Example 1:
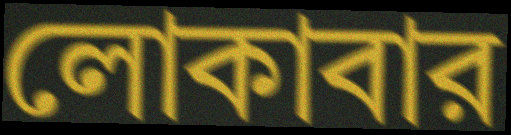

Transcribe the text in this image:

লোকাবার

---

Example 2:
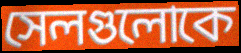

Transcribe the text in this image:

সেলগুলোকে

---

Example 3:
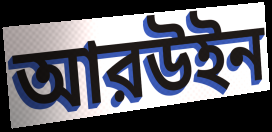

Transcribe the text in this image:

আরউইন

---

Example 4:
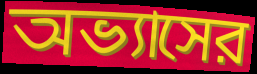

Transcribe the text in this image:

অভ্যাসের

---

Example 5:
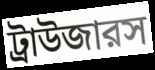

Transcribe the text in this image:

ট্রাউজারস